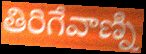
తిరిగేవాణ్ని